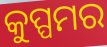
କୁପ୍ପମର